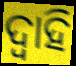
ଦ୍ୱାହି